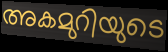
അകമുറിയുടെ